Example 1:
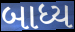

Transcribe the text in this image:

બાધ્ય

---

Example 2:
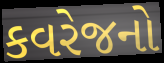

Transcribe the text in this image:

કવરેજનો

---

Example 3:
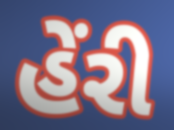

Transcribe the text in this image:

હેંરી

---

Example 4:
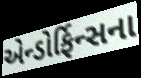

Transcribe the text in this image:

એન્ડોર્ફિન્સના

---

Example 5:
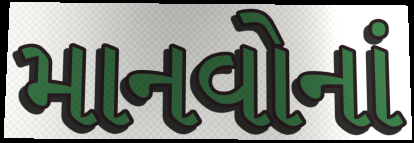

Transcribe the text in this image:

માનવોનાં